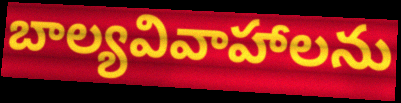
బాల్యవివాహాలను